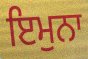
ਇਮੁਨਾ